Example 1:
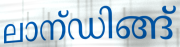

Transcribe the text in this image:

ലാന്ഡിങ്ങ്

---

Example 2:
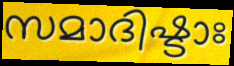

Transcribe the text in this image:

സമാദിഷ്ടാഃ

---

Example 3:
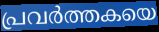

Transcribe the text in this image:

പ്രവർത്തകയെ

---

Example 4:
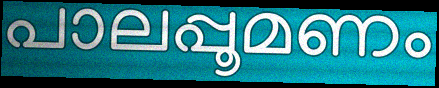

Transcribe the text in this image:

പാലപ്പൂമണം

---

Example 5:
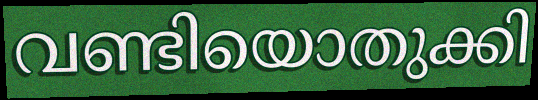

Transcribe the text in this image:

വണ്ടിയൊതുക്കി